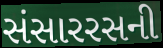
સંસારરસની